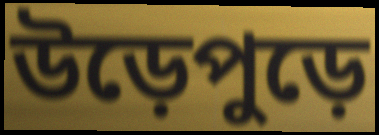
উড়েপুড়ে